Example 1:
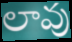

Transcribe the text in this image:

లావు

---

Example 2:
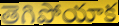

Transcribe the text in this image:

తెగిపోయాక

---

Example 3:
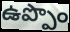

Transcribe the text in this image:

ఉప్పొం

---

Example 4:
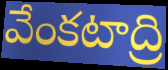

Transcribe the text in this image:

వేంకటాద్రి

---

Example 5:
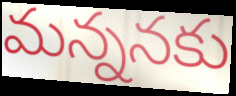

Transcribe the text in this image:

మన్ననకు